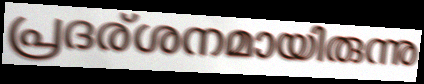
പ്രദര്ശനമായിരുന്നു